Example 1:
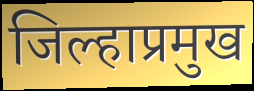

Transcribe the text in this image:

जिल्हाप्रमुख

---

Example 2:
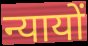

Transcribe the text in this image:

न्यायों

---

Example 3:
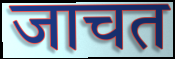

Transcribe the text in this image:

जाचत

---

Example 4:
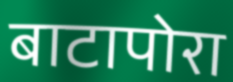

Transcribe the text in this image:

बाटापोरा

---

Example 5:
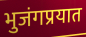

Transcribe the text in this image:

भुजंगप्रयात